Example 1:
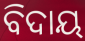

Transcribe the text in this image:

ବିଦାୟ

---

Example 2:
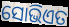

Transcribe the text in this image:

ସୋଭିଏତ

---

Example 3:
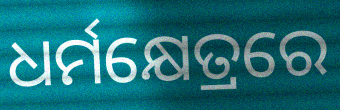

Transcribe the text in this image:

ଧର୍ମକ୍ଷେତ୍ରରେ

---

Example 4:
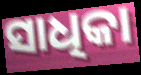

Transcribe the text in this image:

ସାଧିକା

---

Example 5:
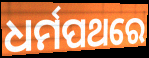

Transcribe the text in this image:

ଧର୍ମପଥରେ